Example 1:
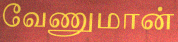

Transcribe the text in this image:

வேணுமான்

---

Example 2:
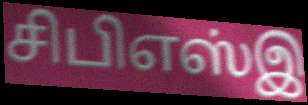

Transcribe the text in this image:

சிபிஎஸ்இ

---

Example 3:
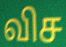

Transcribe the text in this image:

விச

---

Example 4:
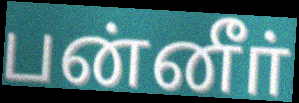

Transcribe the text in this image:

பன்னீர்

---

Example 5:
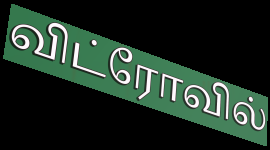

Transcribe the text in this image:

விட்ரோவில்